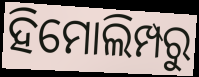
ହିମୋଲିମ୍ପରୁ